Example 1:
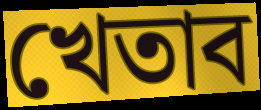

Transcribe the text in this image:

খেতাব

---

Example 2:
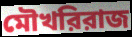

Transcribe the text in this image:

মৌখরিরাজ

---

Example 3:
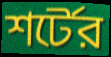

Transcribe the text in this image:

শর্টের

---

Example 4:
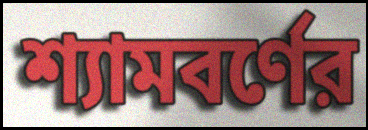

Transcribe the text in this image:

শ্যামবর্ণের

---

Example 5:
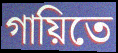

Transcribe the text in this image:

গায়িতে